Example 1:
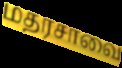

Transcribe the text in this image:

மதரசாவை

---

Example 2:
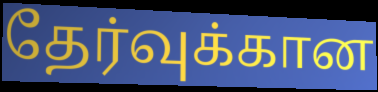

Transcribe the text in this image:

தேர்வுக்கான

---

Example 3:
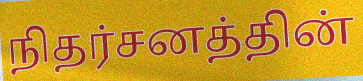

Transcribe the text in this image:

நிதர்சனத்தின்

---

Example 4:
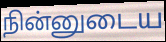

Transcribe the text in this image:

நின்னுடைய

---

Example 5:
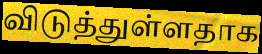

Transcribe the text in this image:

விடுத்துள்ளதாக